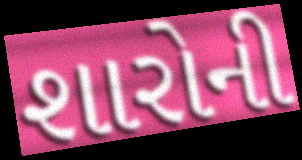
શારોની